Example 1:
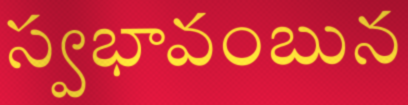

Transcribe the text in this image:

స్వభావంబున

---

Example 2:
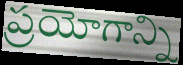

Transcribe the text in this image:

ప్రయోగాన్ని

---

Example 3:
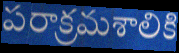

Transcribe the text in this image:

పరాక్రమశాలికి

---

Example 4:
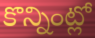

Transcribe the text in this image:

కొన్నింట్లో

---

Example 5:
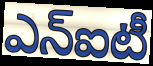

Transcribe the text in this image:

ఎన్ఐటీ